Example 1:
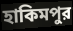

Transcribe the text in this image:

হাকিমপুর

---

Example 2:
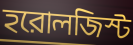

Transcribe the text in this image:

হরোলজিস্ট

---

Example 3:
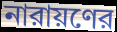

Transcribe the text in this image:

নারায়ণের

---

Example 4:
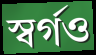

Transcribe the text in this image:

স্বর্গও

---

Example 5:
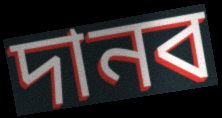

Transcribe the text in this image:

দানব